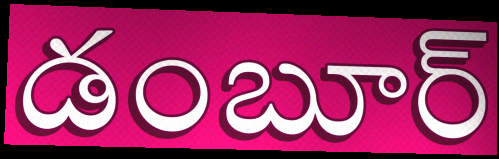
డంబూర్